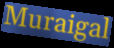
Muraigal